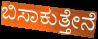
ಬಿಸಾಕುತ್ತೇನೆ